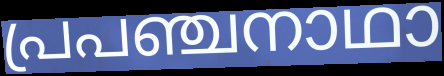
പ്രപഞ്ചനാഥാ